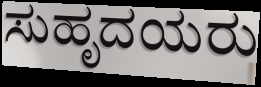
ಸುಹೃದಯರು